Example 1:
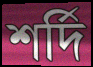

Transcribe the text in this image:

শর্দি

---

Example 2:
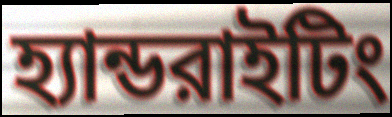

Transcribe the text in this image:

হ্যান্ডরাইটিং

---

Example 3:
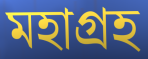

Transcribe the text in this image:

মহাগ্রহ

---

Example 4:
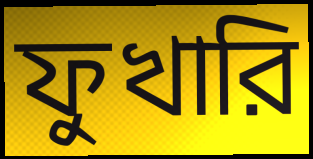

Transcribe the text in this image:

ফুখারি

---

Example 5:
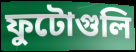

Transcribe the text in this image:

ফুটোগুলি